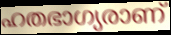
ഹതഭാഗ്യരാണ്